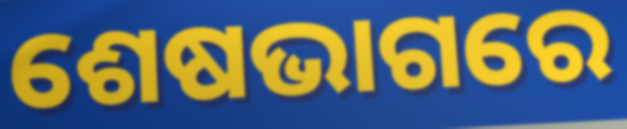
ଶେଷଭାଗରେ